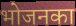
भोजनका